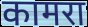
कामरा